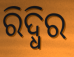
ରିଦ୍ଧିର